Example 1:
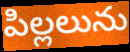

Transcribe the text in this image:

పిల్లలును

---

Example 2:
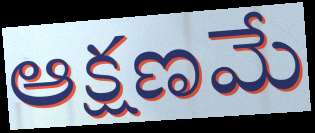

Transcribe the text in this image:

ఆక్షణమే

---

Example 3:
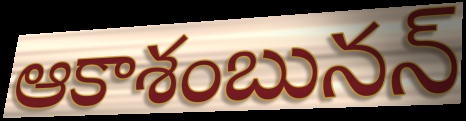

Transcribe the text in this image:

ఆకాశంబునన్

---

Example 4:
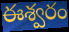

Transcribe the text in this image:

ఈశ్వరం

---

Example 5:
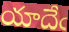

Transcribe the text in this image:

యాదేఁ